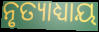
ନୃତ୍ୟାଧ୍ୟାୟ